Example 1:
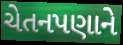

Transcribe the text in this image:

ચેતનપણાને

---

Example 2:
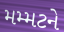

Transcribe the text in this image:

મમ્મટને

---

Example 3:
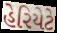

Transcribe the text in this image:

હેરિયેટે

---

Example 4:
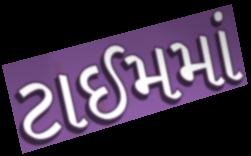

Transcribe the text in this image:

ટાઈમમાં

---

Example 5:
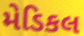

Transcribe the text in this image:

મેડિકલ